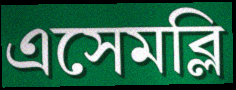
এসেমব্লি